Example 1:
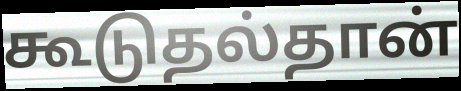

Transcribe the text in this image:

கூடுதல்தான்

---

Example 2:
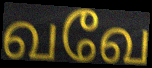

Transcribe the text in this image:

வவே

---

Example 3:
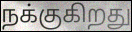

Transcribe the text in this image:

நக்குகிறது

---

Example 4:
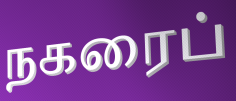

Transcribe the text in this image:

நகரைப்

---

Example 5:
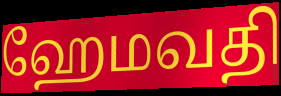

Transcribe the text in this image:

ஹேமவதி